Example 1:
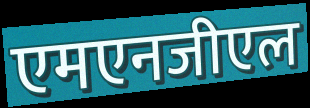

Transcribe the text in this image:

एमएनजीएल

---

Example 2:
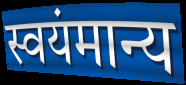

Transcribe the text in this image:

स्वयंमान्य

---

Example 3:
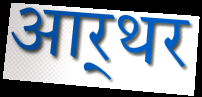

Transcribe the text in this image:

आर्थर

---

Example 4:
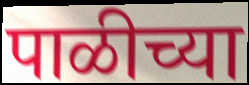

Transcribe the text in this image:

पाळीच्या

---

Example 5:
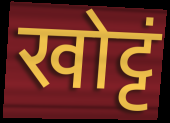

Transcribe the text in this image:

खोट्टं